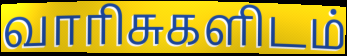
வாரிசுகளிடம்